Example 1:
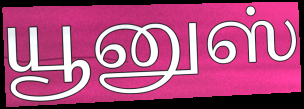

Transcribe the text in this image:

யூனுஸ்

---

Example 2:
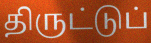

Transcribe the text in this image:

திருட்டுப்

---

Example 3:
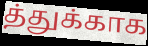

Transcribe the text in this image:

த்துக்காக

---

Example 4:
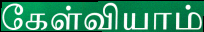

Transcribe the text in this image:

கேள்வியாம்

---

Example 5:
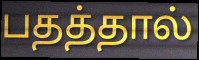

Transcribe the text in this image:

பதத்தால்